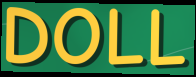
DOLL